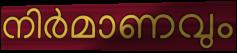
നിർമാണവും